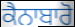
ਕੈਨਾਬਾਰੋ